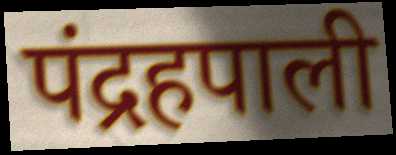
पंद्रहपाली